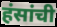
हंसांची